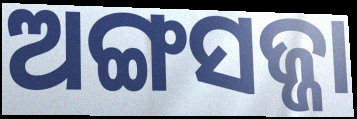
ଅଙ୍ଗସଜ୍ଜା